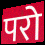
परो